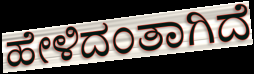
ಹೇಳಿದಂತಾಗಿದೆ